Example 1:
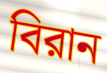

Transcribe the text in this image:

বিরান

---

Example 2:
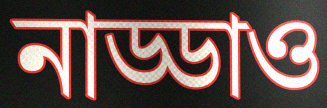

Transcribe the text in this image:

নাড্ডাও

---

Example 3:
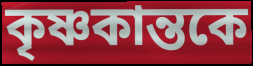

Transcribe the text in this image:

কৃষ্ণকান্তকে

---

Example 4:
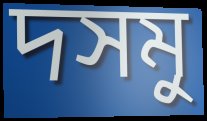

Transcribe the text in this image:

দসমু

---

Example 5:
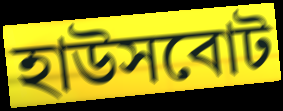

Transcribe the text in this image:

হাউসবোট